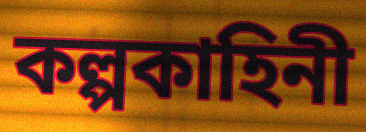
কল্পকাহিনী